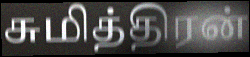
சுமித்திரன்